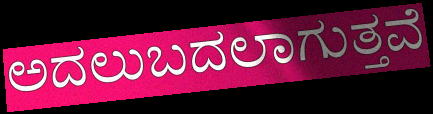
ಅದಲುಬದಲಾಗುತ್ತವೆ